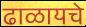
ढाळायचे